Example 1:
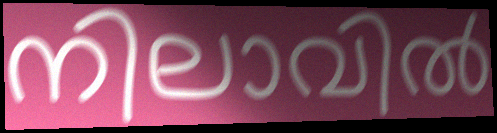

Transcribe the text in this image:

നിലാവിൽ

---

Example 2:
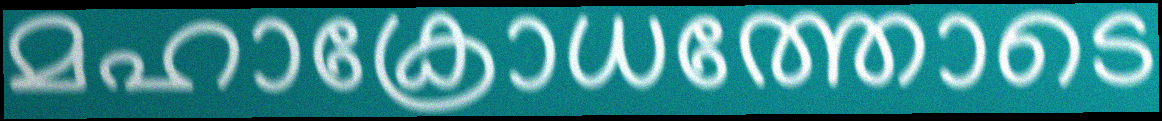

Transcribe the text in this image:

മഹാക്രോധത്തോടെ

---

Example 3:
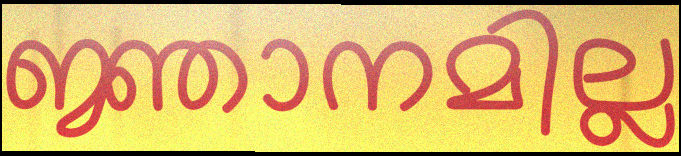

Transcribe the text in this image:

ജ്ഞാനമില്ല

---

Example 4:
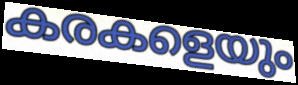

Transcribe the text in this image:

കരകളെയും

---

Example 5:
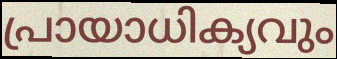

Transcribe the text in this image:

പ്രായാധിക്യവും